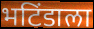
भटिंडाला